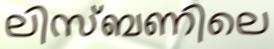
ലിസ്ബണിലെ